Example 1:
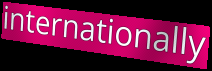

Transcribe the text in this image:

internationally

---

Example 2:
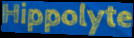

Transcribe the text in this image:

Hippolyte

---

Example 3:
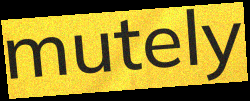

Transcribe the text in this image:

mutely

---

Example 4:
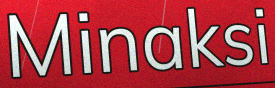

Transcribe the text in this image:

Minaksi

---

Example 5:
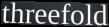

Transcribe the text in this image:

threefold